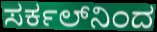
ಸರ್ಕಲ್‌ನಿಂದ